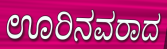
ಊರಿನವರಾದ